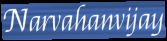
Narvahanvijay